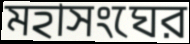
মহাসংঘের